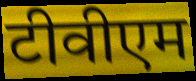
टीवीएम